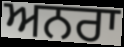
ਅਨਰਾ